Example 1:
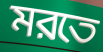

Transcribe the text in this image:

মরতে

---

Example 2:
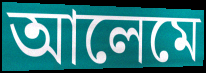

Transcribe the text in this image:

আলেমে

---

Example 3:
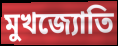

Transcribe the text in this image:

মুখজ্যোতি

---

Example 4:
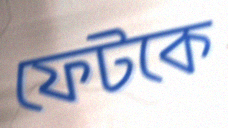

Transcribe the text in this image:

ফেটকে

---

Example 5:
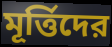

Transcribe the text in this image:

মূর্ত্তিদের